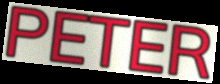
PETER